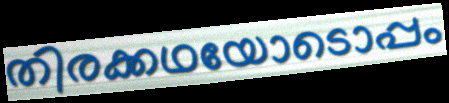
തിരക്കഥയോടൊപ്പം